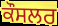
ਕੌਸਲਰ